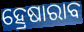
ହ୍ରେଷାରାବ